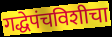
गद्धेपंचविशीचा